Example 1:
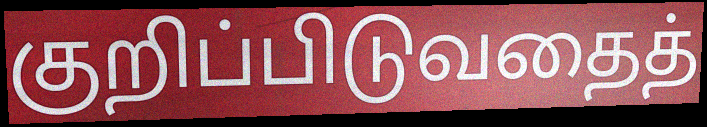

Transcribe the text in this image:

குறிப்பிடுவதைத்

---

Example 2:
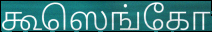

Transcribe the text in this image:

கூஸெங்கோ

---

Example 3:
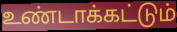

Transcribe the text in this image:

உண்டாக்கட்டும்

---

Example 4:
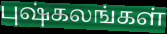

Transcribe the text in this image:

புஷ்கலங்கள்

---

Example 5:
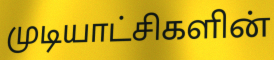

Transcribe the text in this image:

முடியாட்சிகளின்